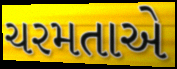
ચરમતાએ